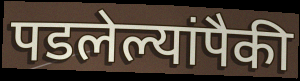
पडलेल्यांपैकी